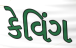
કેવિંગ